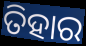
ତିହାର